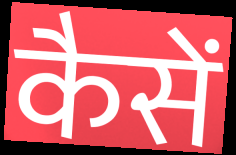
कैसें